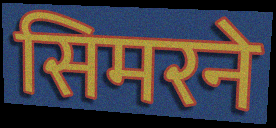
सिमरने